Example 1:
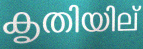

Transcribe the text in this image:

കൃതിയില്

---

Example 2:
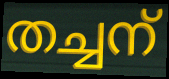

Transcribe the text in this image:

തച്ചന്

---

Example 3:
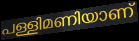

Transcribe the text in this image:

പള്ളിമണിയാണ്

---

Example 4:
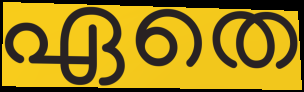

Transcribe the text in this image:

ഏതെ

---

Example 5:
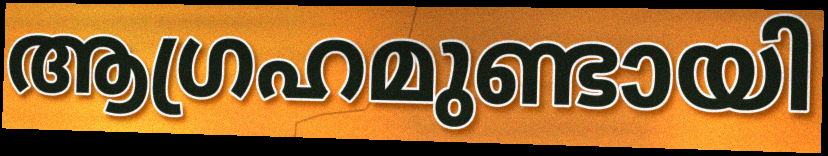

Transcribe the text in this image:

ആഗ്രഹമുണ്ടായി